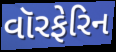
વૉરફેરિન